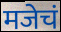
मजेचं